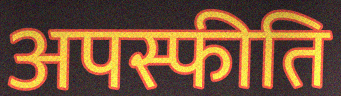
अपस्फीति